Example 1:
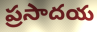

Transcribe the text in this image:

ప్రసాదయ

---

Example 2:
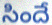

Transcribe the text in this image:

సిందే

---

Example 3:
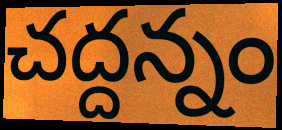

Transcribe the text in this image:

చద్దన్నం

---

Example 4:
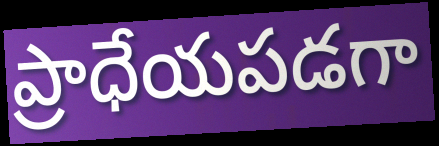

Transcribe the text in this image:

ప్రాధేయపడగా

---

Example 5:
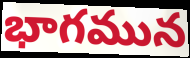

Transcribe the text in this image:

భాగమున